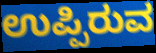
ಉಪ್ಪಿರುವ